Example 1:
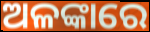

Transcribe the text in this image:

ଅଳଙ୍କାରେ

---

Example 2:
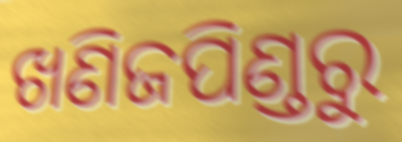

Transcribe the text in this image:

ଖଣିଜପିଣ୍ଡରୁ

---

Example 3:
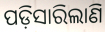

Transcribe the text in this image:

ପଡ଼ିସାରିଲାଣି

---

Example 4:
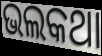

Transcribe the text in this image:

ଭଲକଥା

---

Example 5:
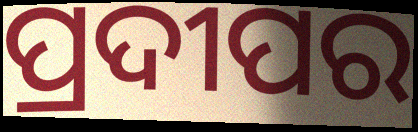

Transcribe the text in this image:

ପ୍ରଦୀପର